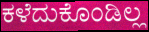
ಕಳೆದುಕೊಂಡಿಲ್ಲ